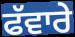
ਫੱਵਾਰੇ